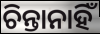
ଚିନ୍ତାନାହିଁ